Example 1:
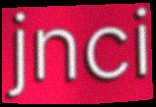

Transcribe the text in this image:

jnci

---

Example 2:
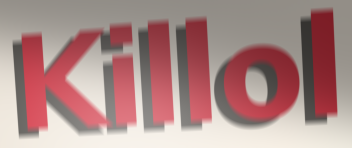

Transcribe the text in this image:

Killol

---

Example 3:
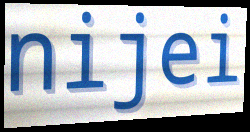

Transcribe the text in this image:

nijei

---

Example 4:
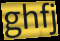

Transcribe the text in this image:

ghfj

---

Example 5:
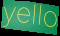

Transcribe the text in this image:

yello